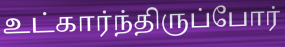
உட்கார்ந்திருப்போர்